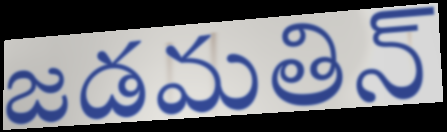
జడమతిన్